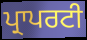
ਪ੍ਰਾਪਰਟੀ